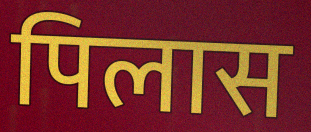
पिलास